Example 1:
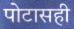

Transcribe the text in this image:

पोटासही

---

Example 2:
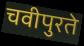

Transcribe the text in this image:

चवीपुरते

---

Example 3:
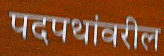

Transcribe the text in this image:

पदपथांवरील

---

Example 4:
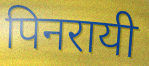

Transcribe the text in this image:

पिनरायी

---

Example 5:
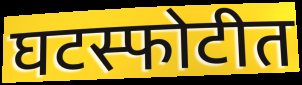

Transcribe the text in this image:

घटस्फोटीत